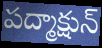
పద్మాక్షున్